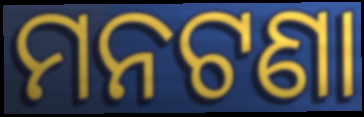
ମନଟଣା